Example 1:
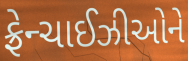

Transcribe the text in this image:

ફ્રેન્ચાઈઝીઓને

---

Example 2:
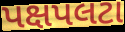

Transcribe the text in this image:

પક્ષપલટા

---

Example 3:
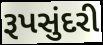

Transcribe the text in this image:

રૂપસુંદરી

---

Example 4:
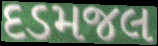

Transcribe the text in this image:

દડમજલ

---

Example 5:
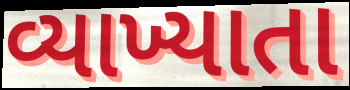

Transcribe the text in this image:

વ્યાખ્યાતા